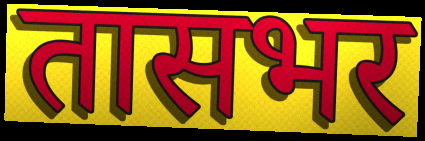
तासभर